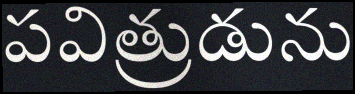
పవిత్రుడును